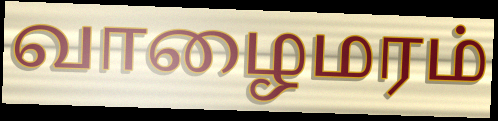
வாழைமரம்